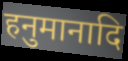
हनुमानादि